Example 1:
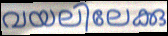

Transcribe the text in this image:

വയലിലേക്കു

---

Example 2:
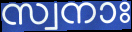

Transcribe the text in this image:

സ്വനാഃ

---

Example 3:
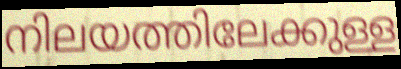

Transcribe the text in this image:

നിലയത്തിലേക്കുള്ള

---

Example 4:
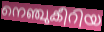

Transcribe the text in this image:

നെഞ്ചുകീറിയ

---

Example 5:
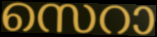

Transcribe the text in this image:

സെറാ